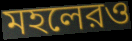
মহলেরও